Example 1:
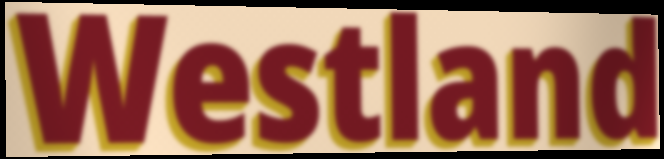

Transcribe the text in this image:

Westland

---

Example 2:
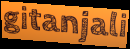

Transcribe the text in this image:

gitanjali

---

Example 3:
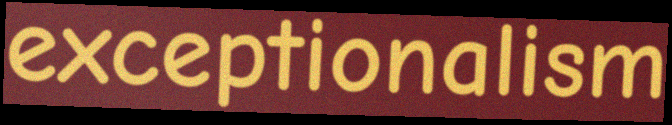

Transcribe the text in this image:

exceptionalism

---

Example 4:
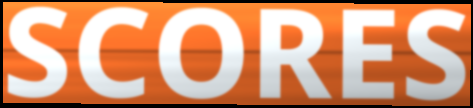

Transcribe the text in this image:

SCORES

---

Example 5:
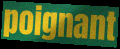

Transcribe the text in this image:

poignant